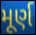
મૂર્ણ